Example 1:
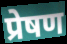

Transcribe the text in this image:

प्रेषण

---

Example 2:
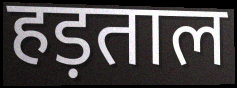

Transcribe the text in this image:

हड़ताल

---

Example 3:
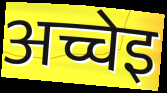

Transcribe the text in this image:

अच्चेइ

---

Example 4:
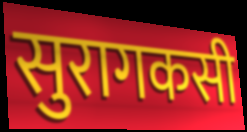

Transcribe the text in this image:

सुरागकसी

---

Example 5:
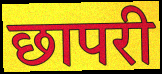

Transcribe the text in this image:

छापरी